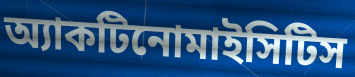
অ্যাকটিনোমাইসিটিস